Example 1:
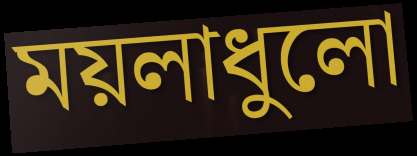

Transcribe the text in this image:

ময়লাধুলো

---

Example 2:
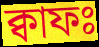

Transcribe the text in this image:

ক্বাফঃ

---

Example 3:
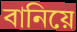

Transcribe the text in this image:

বানিয়ে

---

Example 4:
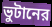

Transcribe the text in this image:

ভুটানের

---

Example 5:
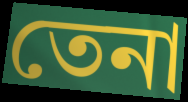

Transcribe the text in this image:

তেনা